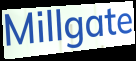
Millgate